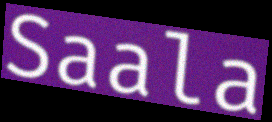
Saala